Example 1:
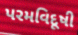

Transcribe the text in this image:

પરમવિદૂષી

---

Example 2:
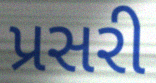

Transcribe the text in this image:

પ્રસરી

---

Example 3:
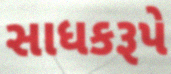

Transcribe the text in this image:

સાધકરૂપે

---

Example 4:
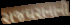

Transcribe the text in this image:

રાજઘરાનાની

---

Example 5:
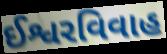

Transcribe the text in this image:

ઈશ્વરવિવાહ